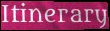
Itinerary